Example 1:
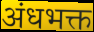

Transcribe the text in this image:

अंधभक्त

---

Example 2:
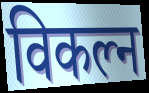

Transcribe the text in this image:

विकल्न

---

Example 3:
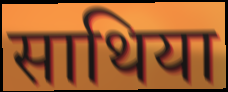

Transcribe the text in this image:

साथिया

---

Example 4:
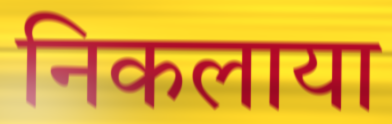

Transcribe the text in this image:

निकलाया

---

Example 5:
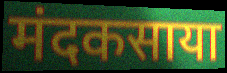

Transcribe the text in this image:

मंदकसाया